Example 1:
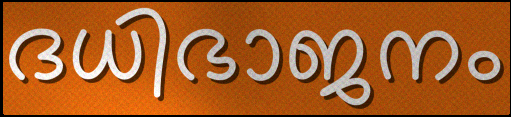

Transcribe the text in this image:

ദധിഭാജനം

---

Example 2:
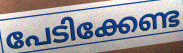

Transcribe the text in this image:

പേടിക്കേണ്ട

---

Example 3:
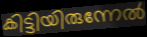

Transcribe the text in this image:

കിട്ടിയിരുന്നേൽ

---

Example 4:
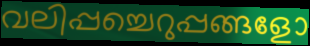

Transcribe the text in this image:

വലിപ്പച്ചെറുപ്പങ്ങളോ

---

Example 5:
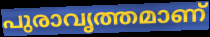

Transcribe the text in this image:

പുരാവൃത്തമാണ്